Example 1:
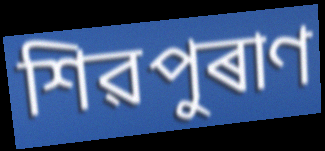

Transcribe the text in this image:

শিৱপুৰাণ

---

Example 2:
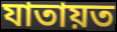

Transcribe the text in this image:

যাতায়ত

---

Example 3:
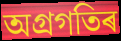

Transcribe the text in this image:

অগ্ৰগতিৰ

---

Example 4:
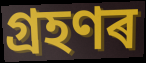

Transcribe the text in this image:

গ্ৰহণৰ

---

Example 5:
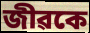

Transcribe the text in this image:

জীৱকে